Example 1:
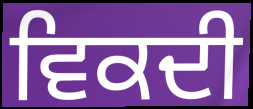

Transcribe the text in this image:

ਵਿਕਦੀ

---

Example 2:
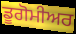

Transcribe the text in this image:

ਡੂਗੋਮੀਅਰ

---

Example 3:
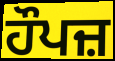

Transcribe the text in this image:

ਹੌਪਜ਼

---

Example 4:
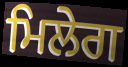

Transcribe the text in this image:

ਮਿਲੇਗ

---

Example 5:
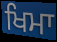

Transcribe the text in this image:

ਖਿਮਾ